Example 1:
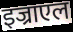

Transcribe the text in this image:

इज्राएल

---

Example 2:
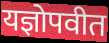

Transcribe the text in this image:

यज्ञोपवीत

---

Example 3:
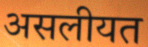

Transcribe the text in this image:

असलीयत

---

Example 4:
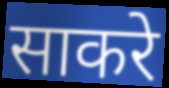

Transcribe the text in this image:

साकरे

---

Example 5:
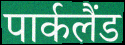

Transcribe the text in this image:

पार्कलैंड